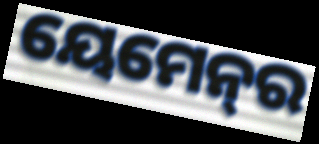
ୟେମେନ୍‌ର